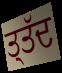
ਤ੍ਤੱਦ